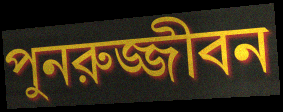
পুনরুজ্জীবন